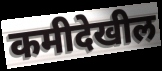
कमीदेखील